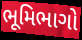
ભૂમિભાગો